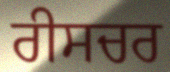
ਰੀਸਚਰ